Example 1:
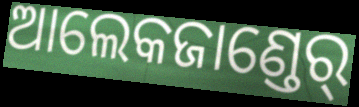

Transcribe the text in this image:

ଆଲେକଜାଣ୍ଡେର୍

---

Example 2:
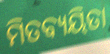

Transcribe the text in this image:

ମିତବ୍ୟୟିତା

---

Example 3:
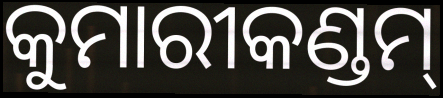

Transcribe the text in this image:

କୁମାରୀକଣ୍ଡମ୍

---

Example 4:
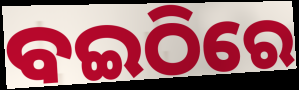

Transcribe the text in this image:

ବଇଠିରେ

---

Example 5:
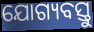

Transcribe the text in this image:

ଯୋଗ୍ୟବସ୍ତୁ